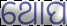
ଥୋପ